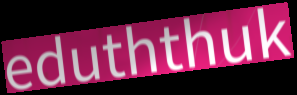
eduththuk